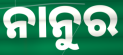
ନାନୁର